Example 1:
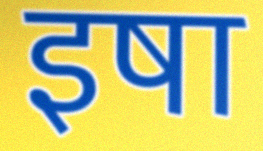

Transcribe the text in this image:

इषा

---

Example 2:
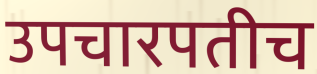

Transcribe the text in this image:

उपचारपतीच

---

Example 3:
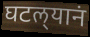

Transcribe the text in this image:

घटल्यानं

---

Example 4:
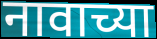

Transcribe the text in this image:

नावाच्या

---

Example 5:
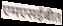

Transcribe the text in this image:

एमएसईबीत